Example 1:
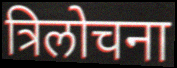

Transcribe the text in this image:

त्रिलोचना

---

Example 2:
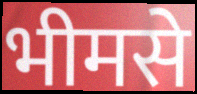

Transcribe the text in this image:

भीमसे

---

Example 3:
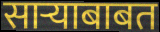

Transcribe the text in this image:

साऱ्याबाबत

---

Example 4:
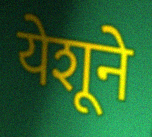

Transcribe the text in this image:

येशूने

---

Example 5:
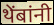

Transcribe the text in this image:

थेंबांनी